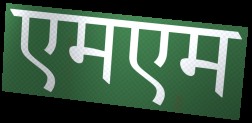
एमएम